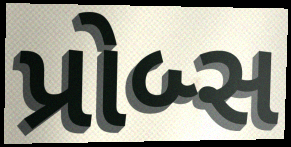
પ્રોબ્સ